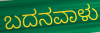
ಬದನವಾಳು